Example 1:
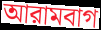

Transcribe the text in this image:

আরামবাগ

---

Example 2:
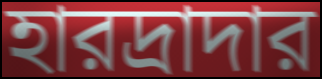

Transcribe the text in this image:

হারদ্রাদার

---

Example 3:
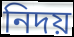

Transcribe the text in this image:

নিদয়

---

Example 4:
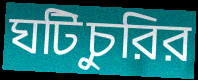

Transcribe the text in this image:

ঘটিচুরির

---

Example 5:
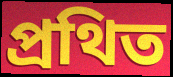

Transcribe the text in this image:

প্রথিত